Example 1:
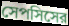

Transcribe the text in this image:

সেপসিসের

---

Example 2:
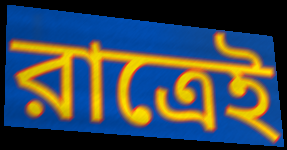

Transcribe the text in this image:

রাত্রেই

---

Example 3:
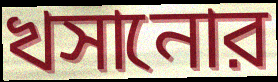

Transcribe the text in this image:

খসানোর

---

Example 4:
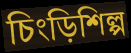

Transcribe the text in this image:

চিংড়িশিল্প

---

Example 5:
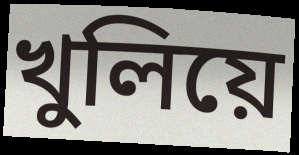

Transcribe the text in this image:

খুলিয়ে